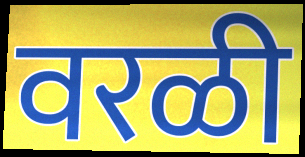
वरळी